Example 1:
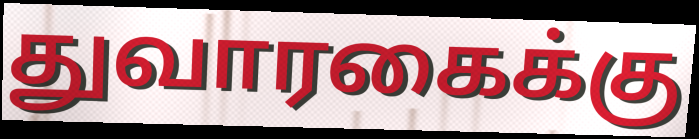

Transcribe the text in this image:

துவாரகைக்கு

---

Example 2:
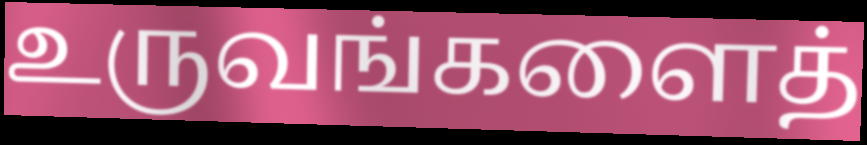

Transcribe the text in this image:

உருவங்களைத்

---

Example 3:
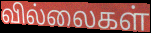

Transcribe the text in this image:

வில்லைகள்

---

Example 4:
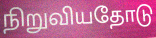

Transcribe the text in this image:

நிறுவியதோடு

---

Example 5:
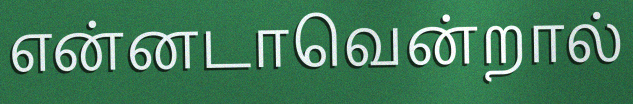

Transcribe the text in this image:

என்னடாவென்றால்